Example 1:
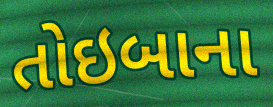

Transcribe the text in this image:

તોઇબાના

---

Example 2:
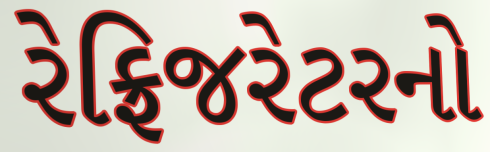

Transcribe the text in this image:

રેફ્રિજરેટરનો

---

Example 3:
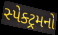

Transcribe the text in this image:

સ્પેક્ટ્રમનો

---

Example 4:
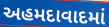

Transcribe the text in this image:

અહમદાવાદમાં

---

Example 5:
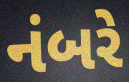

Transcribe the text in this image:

નંબરે